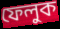
ফেলুক